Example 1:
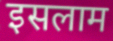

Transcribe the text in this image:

इसलाम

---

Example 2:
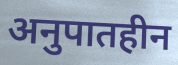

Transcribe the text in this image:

अनुपातहीन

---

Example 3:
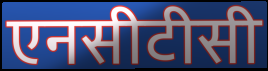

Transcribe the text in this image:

एनसीटीसी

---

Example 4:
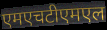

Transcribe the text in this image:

एमएचटीएमएल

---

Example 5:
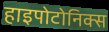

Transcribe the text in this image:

हाइपोटोनिक्स